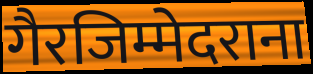
गैरजिम्मेदराना